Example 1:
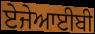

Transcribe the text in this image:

ਏਜੇਆਈਬੀ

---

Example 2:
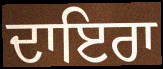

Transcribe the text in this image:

ਦਾਇਰਾ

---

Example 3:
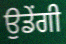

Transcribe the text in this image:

ਉਡੇਂਗੀ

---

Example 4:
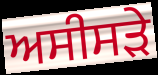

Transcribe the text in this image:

ਅਸੀਸੜੇ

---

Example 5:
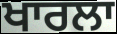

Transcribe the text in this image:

ਖਾਰਲਾ